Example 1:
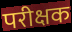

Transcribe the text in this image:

परीक्षक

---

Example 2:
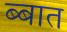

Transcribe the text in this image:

ब्बात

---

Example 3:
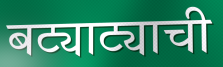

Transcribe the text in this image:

बट्याट्याची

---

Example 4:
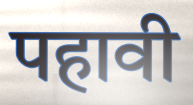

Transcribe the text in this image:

पहावी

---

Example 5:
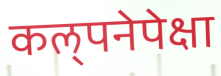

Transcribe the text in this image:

कल्पनेपेक्षा